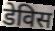
डेविस